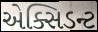
એક્સિડન્ટ